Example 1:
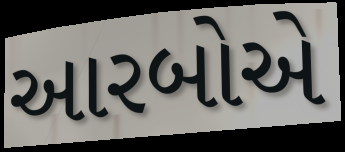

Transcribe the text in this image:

આરબોએ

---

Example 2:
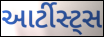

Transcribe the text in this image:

આર્ટીસ્ટ્સ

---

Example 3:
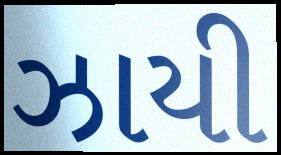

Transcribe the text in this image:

ઝાયી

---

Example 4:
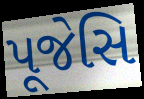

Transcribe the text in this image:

પૂજેસિ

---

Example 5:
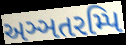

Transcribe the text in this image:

અઞ્ઞતરમ્પિ